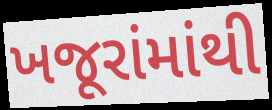
ખજૂરાંમાંથી